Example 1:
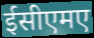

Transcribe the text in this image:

ईसीएमए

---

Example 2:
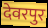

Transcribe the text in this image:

देवरपुर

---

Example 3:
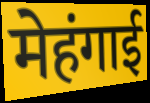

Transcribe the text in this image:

मेहंगाई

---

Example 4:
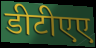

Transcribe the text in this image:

डीटीएए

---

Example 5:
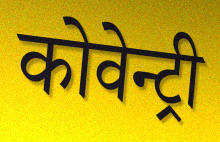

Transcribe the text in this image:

कोवेन्ट्री